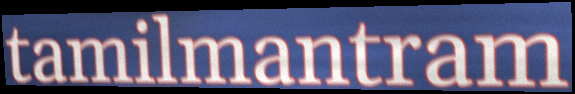
tamilmantram